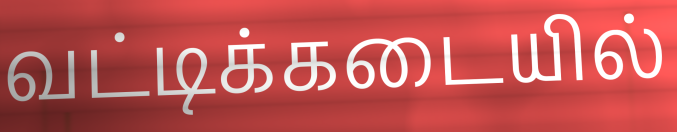
வட்டிக்கடையில்